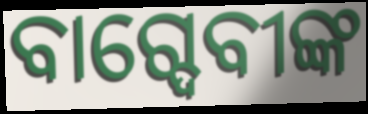
ବାଗ୍ଦେବୀଙ୍କ